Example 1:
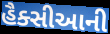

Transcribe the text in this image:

હૈક્સીઆની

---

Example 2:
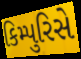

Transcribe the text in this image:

કિમ્પુરિસે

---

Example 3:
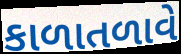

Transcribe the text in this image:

કાળાતળાવે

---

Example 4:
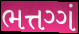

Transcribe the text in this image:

ભત્તગ્ગં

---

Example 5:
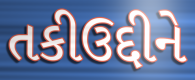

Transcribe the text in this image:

તકીઉદ્દીને